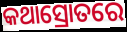
କଥାସ୍ରୋତରେ